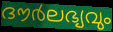
ദൗർലഭ്യവും